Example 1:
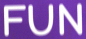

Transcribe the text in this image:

FUN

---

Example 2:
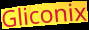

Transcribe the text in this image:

Gliconix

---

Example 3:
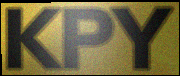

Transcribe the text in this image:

KPY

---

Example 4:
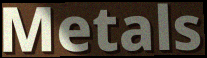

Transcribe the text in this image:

Metals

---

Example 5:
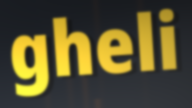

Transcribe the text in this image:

gheli